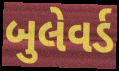
બુલેવર્ડ